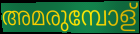
അമരുമ്പോള്